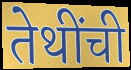
तेथींची